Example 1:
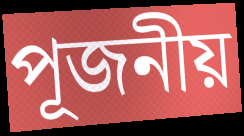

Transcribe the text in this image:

পূজনীয়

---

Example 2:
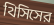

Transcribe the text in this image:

থিসিসের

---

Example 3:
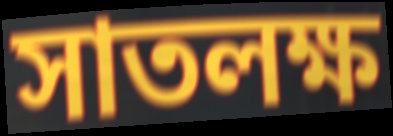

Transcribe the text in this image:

সাতলক্ষ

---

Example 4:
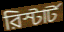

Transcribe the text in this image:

রিস্টার্ট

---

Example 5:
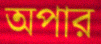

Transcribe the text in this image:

অপার